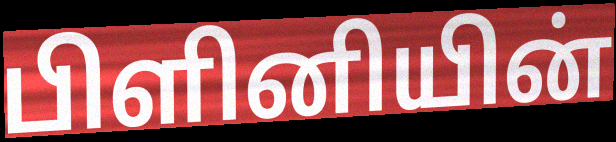
பிளினியின்